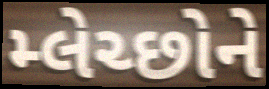
મ્લેચ્છોને